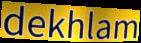
dekhlam